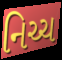
નિચ્ચ